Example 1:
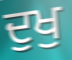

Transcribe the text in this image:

ਦੁਖੁ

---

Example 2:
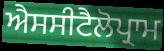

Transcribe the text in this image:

ਐਸਸੀਟੈਲੋਪ੍ਰਾਮ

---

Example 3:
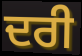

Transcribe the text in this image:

ਦਰੀ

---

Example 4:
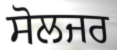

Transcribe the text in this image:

ਸੋਲਜਰ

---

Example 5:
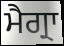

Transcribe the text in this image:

ਮੈਗ੍ਰਾ